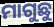
ମାଗୁଛୁ